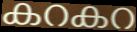
കറകറ